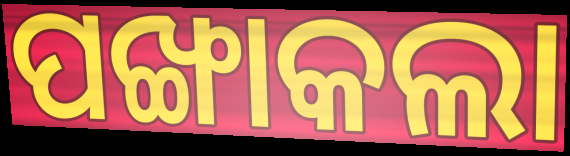
ପଙ୍ଖାକଲା